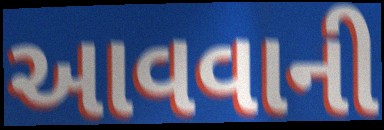
આવવાની